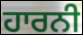
ਹਾਰਨੀ